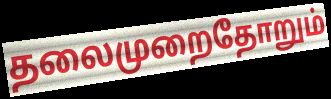
தலைமுறைதோறும்